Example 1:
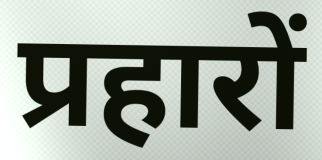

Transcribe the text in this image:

प्रहारों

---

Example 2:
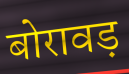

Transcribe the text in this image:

बोरावड़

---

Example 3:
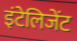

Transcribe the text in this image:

इंटेलिजेंट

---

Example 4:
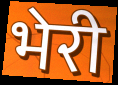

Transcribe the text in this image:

भेरी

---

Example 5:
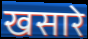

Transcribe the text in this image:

खसारे